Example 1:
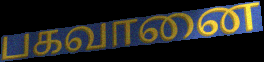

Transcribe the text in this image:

பகவானை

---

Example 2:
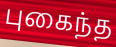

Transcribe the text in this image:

புகைந்த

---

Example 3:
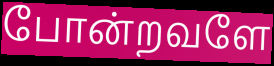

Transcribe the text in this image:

போன்றவளே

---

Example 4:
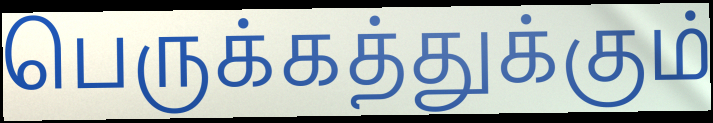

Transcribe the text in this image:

பெருக்கத்துக்கும்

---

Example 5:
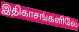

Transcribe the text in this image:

இதிகாசங்களிலே